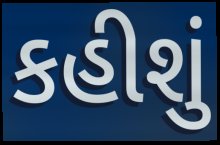
કહીશું